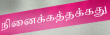
நினைக்கத்தக்கது